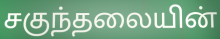
சகுந்தலையின்